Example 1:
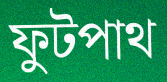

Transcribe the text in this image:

ফুটপাথ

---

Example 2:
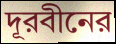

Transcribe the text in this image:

দূরবীনের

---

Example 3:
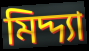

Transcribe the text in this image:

মিদ্দ্যা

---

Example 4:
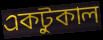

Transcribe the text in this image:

একটুকাল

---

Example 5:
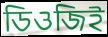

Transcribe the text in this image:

ডিওজিই